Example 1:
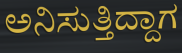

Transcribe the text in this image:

ಅನಿಸುತ್ತಿದ್ದಾಗ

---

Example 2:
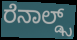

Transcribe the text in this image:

ರೆನಾಲ್ಡ್ಸ್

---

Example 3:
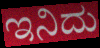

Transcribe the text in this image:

ಇನಿದು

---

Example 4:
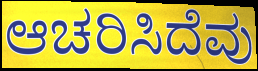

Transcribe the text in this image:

ಆಚರಿಸಿದೆವು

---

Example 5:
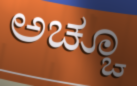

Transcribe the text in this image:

ಅಚ್ಚೂ